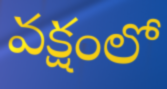
వక్షంలో